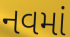
નવમાં